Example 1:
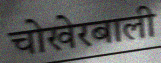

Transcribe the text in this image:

चोखेरबाली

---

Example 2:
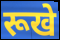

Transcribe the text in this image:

रूखे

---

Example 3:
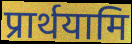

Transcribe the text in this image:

प्रार्थयामि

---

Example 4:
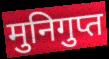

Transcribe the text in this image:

मुनिगुप्त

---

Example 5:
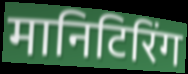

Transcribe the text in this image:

मानिटिरिंग